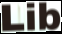
Lib